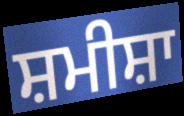
ਸ਼ਮੀਸ਼ਾ